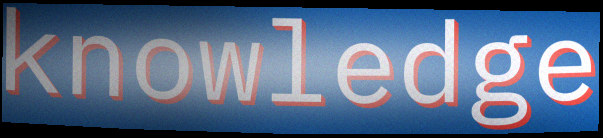
knowledge